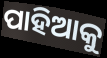
ପାହିଆକୁ